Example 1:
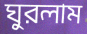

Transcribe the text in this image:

ঘুরলাম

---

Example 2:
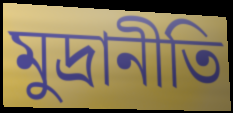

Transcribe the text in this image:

মুদ্রানীতি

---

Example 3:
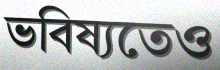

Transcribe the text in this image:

ভবিষ্যতেও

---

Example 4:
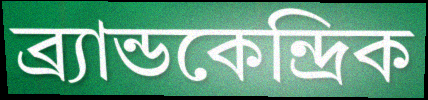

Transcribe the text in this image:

ব্র্যান্ডকেন্দ্রিক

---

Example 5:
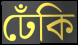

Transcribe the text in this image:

ঢেঁকি